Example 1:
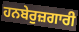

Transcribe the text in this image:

ਹਨਬੇਰੁਜ਼ਗਾਰੀ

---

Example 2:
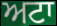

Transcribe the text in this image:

ਅਟਾ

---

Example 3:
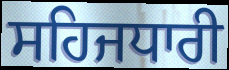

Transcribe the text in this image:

ਸਹਿਜਧਾਰੀ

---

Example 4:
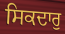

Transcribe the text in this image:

ਸਿਕਦਾਰੁ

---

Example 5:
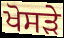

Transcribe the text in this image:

ਖੋਸੜੇ